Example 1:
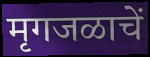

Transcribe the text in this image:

मृगजळाचें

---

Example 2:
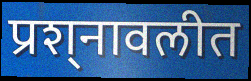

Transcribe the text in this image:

प्रश्नावलीत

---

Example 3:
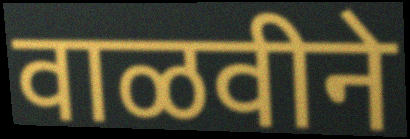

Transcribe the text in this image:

वाळवीने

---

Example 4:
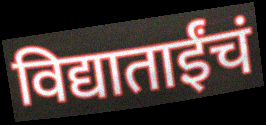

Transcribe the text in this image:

विद्याताईंचं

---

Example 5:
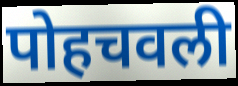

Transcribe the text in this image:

पोहचवली